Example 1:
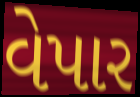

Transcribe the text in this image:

વેપાર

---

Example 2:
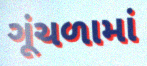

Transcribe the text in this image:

ગૂંચળામાં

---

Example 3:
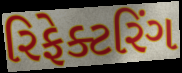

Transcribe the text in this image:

રિફેક્ટરિંગ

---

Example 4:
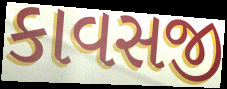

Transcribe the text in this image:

કાવસજી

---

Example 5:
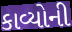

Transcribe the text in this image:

કાવ્યોની